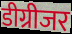
डीग्रीजर